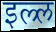
इल्ल